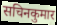
सचिनकुमार